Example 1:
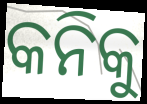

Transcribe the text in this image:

କନିକୁ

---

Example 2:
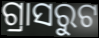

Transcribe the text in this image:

ଗ୍ରାସରୁଟ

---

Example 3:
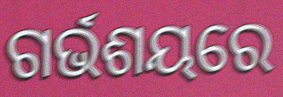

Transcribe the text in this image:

ଗର୍ଭଶୟରେ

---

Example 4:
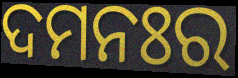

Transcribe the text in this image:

ଦମନଃର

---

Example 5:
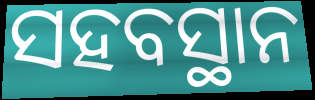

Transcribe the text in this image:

ସହବସ୍ଥାନ